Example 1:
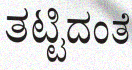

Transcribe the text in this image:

ತಟ್ಟಿದಂತೆ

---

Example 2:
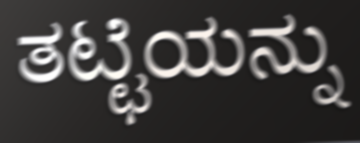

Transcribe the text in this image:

ತಟ್ಟೆಯನ್ನು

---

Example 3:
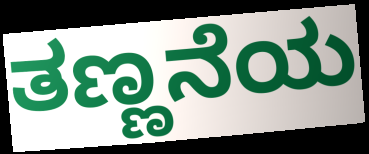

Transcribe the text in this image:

ತಣ್ಣನೆಯ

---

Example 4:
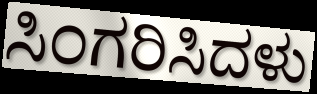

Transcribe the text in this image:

ಸಿಂಗರಿಸಿದಳು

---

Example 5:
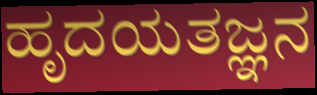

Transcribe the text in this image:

ಹೃದಯತಜ್ಞನ